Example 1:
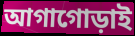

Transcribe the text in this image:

আগাগোড়াই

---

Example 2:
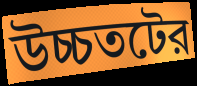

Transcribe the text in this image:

উচ্চতটের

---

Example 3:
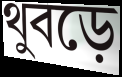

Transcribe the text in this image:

থুবড়ে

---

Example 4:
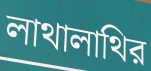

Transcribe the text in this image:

লাথালাথির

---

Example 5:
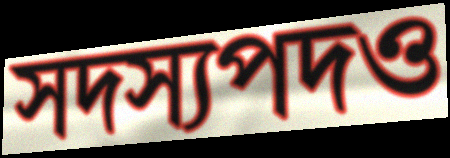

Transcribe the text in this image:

সদস্যপদও